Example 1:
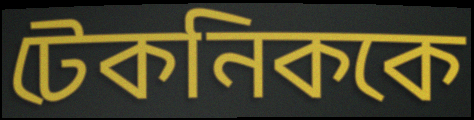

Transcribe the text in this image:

টেকনিককে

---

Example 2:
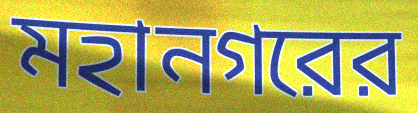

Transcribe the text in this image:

মহানগরের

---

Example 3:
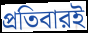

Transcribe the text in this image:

প্রতিবারই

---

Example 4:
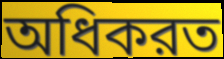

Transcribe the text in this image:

অধিকরত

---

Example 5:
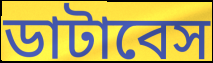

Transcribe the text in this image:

ডাটাবেস